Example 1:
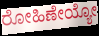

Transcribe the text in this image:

ರೋಹಿಣೇಯ್ಯೋ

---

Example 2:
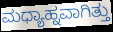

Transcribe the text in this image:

ಮಧ್ಯಾಹ್ನವಾಗಿತ್ತು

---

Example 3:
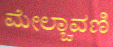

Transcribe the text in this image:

ಮೇಲ್ಚಾವಣಿ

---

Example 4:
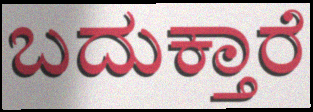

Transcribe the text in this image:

ಬದುಕ್ತಾರೆ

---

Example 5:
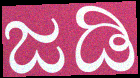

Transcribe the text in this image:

ಜಡಿ